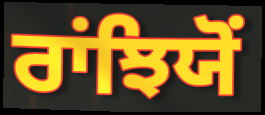
ਰਾਂਝਿਯੋਂ